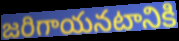
జరిగాయనటానికి